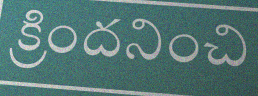
క్రిందనించి